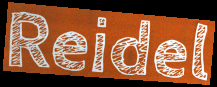
Reidel